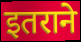
इतराने